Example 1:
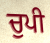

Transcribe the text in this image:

ਚੁਪੀ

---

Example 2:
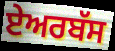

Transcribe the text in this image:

ਏਅਰਬੱਸ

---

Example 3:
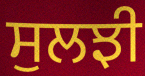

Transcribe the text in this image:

ਸੁਲਝੀ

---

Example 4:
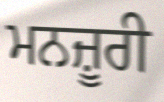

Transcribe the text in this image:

ਮਨਜ਼ੂਰੀ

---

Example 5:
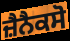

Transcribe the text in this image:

ਜ਼ੈਨੈਕਸੋ